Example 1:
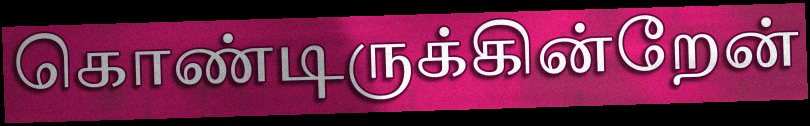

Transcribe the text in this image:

கொண்டிருக்கின்றேன்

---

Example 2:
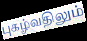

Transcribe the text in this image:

புகழ்வதிலும்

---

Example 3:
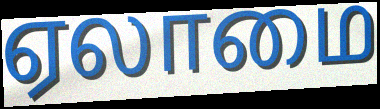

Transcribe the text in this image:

ஏலாமை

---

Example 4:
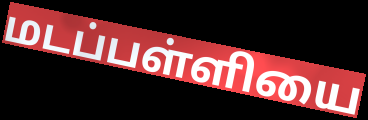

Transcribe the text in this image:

மடப்பள்ளியை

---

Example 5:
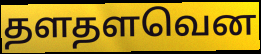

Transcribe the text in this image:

தளதளவென